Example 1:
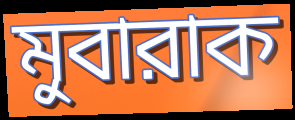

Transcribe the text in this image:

মুবারাক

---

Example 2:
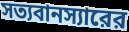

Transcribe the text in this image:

সত্যবানস্যারের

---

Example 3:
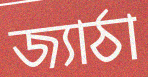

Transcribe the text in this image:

জ্যাঠা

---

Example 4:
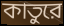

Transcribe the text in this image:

কাতুরে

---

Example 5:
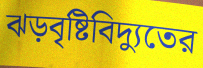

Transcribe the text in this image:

ঝড়বৃষ্টিবিদ্যুতের